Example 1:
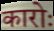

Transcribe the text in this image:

कारोः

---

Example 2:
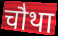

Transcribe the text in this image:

चौथा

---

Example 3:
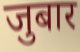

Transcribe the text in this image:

जुबार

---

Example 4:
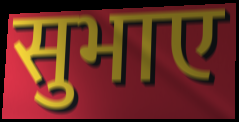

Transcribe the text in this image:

सुभाए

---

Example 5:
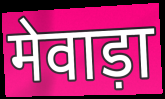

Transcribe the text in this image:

मेवाड़ा